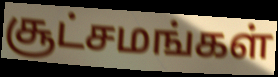
சூட்சமங்கள்